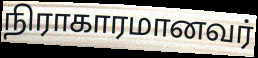
நிராகாரமானவர்